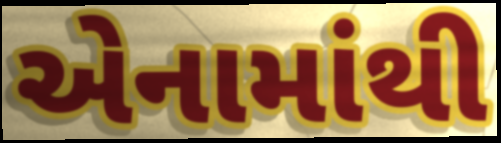
એનામાંથી